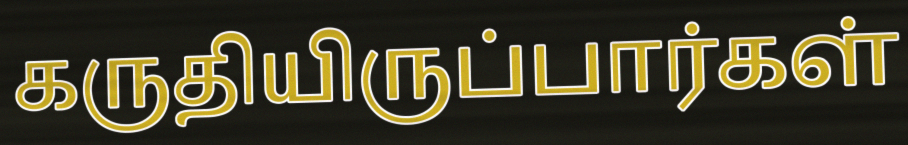
கருதியிருப்பார்கள்